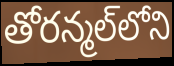
తోరన్మల్‌లోని